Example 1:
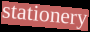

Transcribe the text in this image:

stationery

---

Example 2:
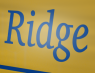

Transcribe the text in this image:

Ridge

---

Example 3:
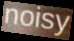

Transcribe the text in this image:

noisy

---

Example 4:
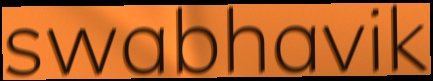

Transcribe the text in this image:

swabhavik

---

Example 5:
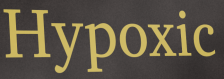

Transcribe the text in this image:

Hypoxic